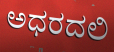
ಅಧರದಲಿ